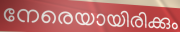
നേരെയായിരിക്കും